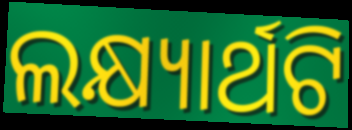
ଲକ୍ଷ୍ୟାର୍ଥଟି